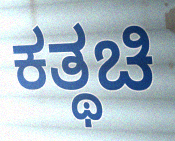
ಕತ್ಥಚಿ